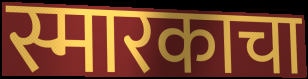
स्मारकाचा